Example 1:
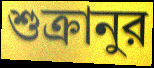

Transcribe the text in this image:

শুক্রানুর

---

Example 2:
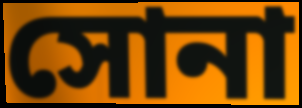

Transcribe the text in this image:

সোনা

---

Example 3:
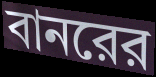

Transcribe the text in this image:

বানরের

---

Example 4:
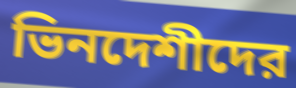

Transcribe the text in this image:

ভিনদেশীদের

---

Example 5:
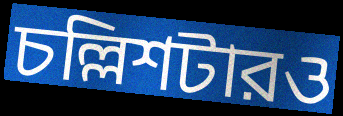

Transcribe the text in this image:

চল্লিশটারও